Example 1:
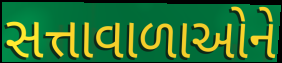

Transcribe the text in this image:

સત્તાવાળાઓને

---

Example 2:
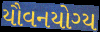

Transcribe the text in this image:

યૌવનયોગ્ય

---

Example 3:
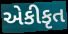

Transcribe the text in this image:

એકીકૃત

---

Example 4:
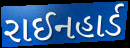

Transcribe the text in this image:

રાઈનહાર્ડ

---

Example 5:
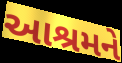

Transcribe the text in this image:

આશ્રમને